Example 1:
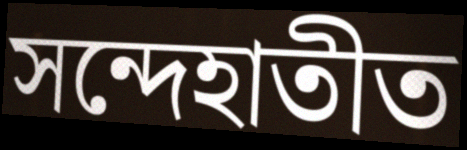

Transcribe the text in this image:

সন্দেহাতীত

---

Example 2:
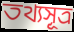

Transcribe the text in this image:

তথ্যসূত্র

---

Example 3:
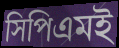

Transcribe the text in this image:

সিপিএমই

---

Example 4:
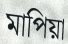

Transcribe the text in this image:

মাপিয়া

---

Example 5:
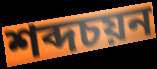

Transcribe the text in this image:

শব্দচয়ন